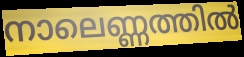
നാലെണ്ണത്തിൽ